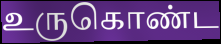
உருகொண்ட